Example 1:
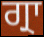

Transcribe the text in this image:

ਗ੍ਰਾ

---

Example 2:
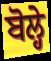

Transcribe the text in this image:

ਬੋਲ੍ਹੇ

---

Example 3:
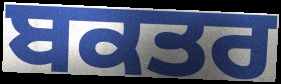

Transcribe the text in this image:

ਬਕਤਰ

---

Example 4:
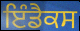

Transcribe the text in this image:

ਇੰਡੈਕਸ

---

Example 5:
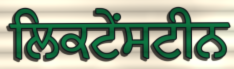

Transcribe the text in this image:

ਲਿਕਟੇਂਸਟੀਨ